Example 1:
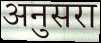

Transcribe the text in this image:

अनुसरा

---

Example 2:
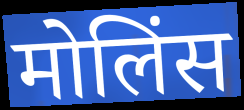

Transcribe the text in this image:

मोलिंस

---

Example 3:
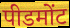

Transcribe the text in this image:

पीडमोंट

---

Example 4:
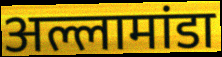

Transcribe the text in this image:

अल्लामांडा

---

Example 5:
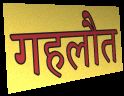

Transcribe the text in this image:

गहलौत